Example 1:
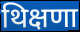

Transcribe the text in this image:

थिक्षणा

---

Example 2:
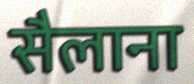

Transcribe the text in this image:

सैलाना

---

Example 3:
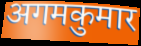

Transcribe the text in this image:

अगमकुमार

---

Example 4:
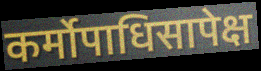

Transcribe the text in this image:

कर्मोपाधिसापेक्ष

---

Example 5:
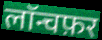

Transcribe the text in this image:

लॉन्चफ़र